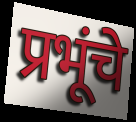
प्रभूंचे